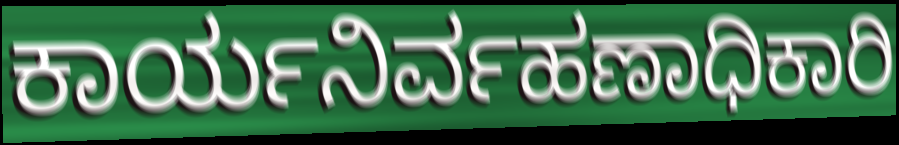
ಕಾರ್ಯನಿರ್ವಹಣಾಧಿಕಾರಿ